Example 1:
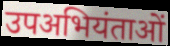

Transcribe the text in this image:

उपअभियंताओं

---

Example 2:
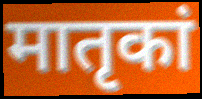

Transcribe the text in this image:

मातृकां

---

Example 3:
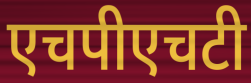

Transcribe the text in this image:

एचपीएचटी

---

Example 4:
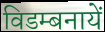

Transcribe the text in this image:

विडम्बनायें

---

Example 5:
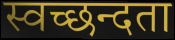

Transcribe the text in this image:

स्वच्छन्दता